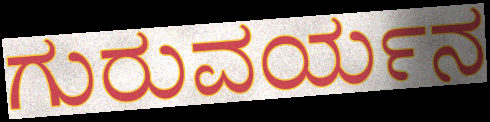
ಗುರುವರ್ಯನ